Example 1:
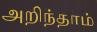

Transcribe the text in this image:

அறிந்தாம்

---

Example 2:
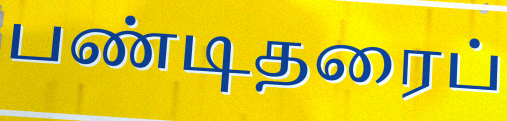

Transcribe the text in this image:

பண்டிதரைப்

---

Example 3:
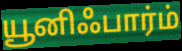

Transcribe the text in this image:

யூனிஃபார்ம்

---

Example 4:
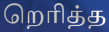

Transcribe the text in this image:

றெரித்த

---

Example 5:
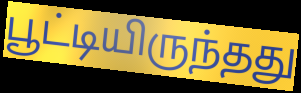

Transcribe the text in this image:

பூட்டியிருந்தது